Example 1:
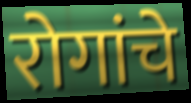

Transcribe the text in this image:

रोगांचे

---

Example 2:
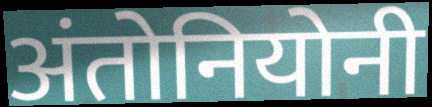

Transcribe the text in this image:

अंतोनियोनी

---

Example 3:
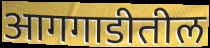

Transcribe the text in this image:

आगगाडीतील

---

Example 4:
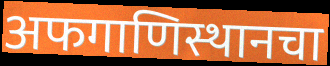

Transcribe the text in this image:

अफगाणिस्थानचा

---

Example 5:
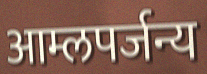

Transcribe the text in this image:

आम्लपर्जन्य